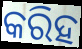
କରିହ